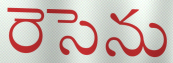
రెసెను